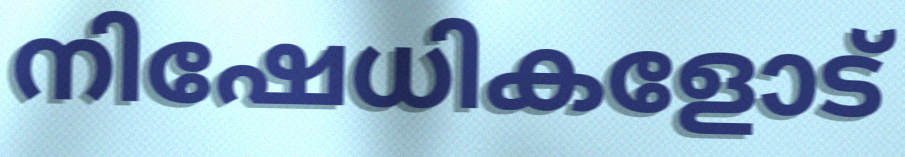
നിഷേധികളോട്